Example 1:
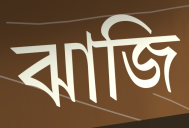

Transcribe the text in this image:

ঝাজি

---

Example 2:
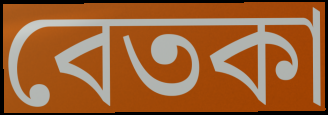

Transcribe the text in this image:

বেতকা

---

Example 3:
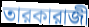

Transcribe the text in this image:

তারকারাজী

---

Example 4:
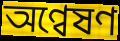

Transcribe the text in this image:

অণ্বেষণ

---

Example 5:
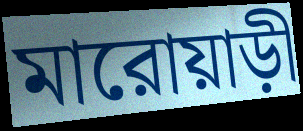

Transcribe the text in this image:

মারোয়াড়ী